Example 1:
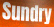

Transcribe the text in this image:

Sundry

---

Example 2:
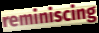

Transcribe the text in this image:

reminiscing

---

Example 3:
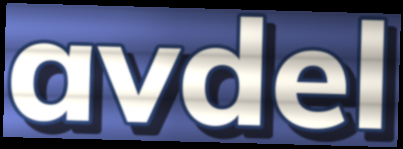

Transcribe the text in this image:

avdel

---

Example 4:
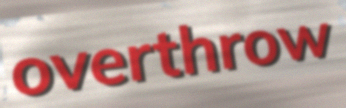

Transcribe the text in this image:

overthrow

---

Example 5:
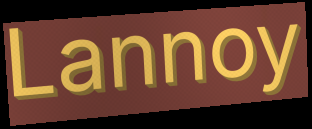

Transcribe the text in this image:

Lannoy